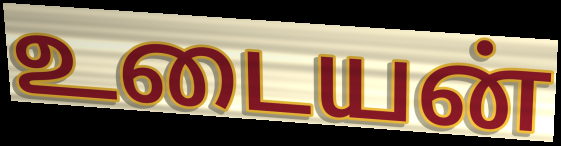
உடையன்